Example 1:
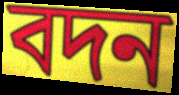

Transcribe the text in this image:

বদন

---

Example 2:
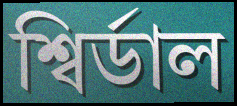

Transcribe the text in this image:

শ্বিৰ্ডাল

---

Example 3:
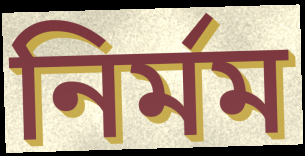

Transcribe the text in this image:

নিৰ্মম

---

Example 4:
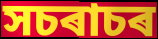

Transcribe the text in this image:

সচৰাচৰ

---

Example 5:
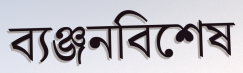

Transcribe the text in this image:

ব্যঞ্জনবিশেষ